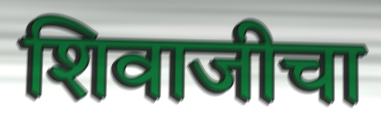
शिवाजीचा